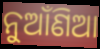
ନୁଆଁଣିଆ